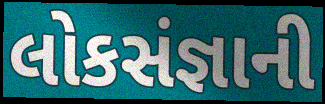
લોકસંજ્ઞાની